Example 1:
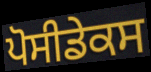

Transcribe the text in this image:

ਪੋਸੀਡੇਕਸ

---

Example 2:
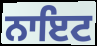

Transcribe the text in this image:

ਨਾਇਟ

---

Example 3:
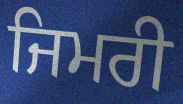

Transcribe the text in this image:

ਜਿਮਰੀ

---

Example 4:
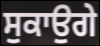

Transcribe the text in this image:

ਸੁਕਾਉਗੇ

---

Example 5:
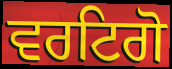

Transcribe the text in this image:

ਵਰਟਿਗੋ